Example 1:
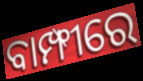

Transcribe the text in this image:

ବାମ୍ଫୀରେ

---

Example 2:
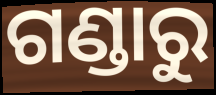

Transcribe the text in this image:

ଗଣ୍ଡାରୁ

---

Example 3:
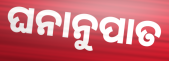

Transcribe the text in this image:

ଘନାନୁପାତ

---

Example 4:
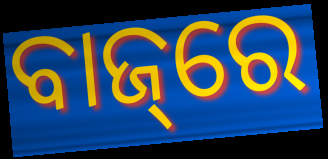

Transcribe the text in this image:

ବାଜ୍‌ରେ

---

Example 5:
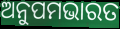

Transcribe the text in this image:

ଅନୁପମଭାରତ